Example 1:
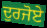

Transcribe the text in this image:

ਦੁਰਜੋਏ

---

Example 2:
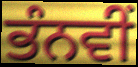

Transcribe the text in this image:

ਭੰਨਵੀਂ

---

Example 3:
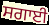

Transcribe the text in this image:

ਸਗਾਈ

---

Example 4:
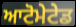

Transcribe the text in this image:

ਆਟੋਮੇਟੇਡ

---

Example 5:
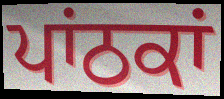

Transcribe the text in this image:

ਪਾਂਠਕਾਂ